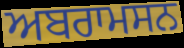
ਅਬਰਾਮਸਨ